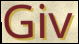
Giv